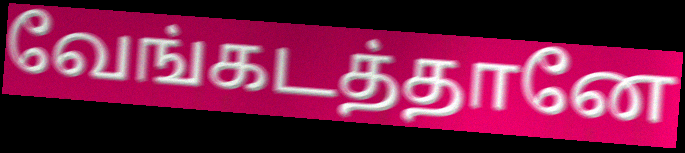
வேங்கடத்தானே